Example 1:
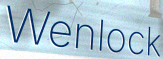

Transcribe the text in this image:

Wenlock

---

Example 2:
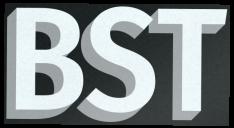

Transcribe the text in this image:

BST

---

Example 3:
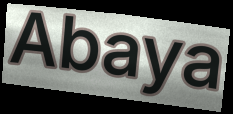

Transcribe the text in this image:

Abaya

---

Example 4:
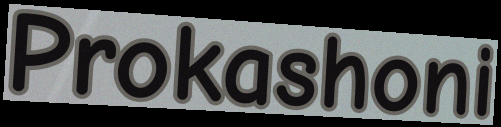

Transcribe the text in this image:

Prokashoni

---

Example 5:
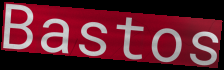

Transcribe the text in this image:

Bastos